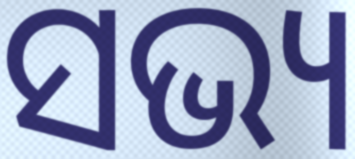
ସଭ୍ୟ